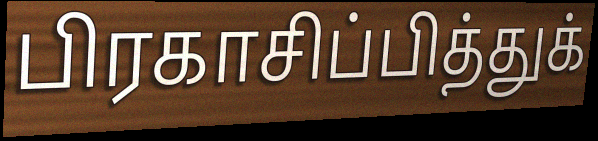
பிரகாசிப்பித்துக்